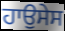
ਹਾਉਸੇਸ